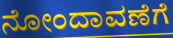
ನೋಂದಾವಣೆಗೆ